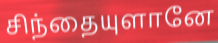
சிந்தையுளானே